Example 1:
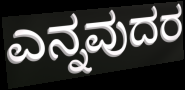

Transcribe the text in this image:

ಎನ್ನವುದರ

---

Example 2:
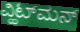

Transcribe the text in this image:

ವ್ಹಿಟ್‌ಮನ್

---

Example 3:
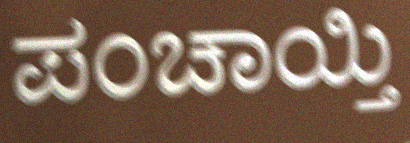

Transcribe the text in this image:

ಪಂಚಾಯ್ತಿ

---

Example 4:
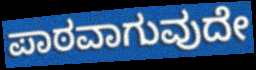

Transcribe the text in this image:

ಪಾಠವಾಗುವುದೇ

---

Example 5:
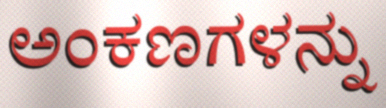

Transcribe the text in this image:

ಅಂಕಣಗಳನ್ನು